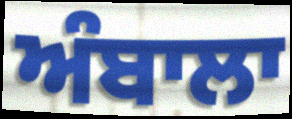
ਅੰਬਾਲਾ